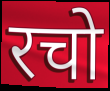
रचो